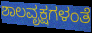
ಶಾಲವೃಕ್ಷಗಳಂತೆ